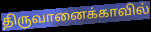
திருவானைக்காவில்